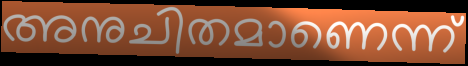
അനുചിതമാണെന്ന്